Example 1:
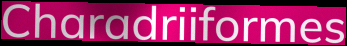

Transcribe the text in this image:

Charadriiformes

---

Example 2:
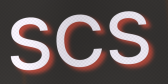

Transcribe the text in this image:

SCS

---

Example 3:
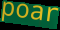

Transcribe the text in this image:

poar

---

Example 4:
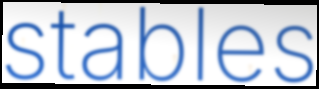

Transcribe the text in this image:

stables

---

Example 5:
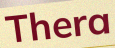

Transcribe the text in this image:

Thera